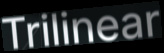
Trilinear